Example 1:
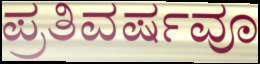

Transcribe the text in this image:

ಪ್ರತಿವರ್ಷವೂ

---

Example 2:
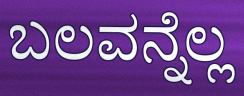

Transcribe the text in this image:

ಬಲವನ್ನೆಲ್ಲ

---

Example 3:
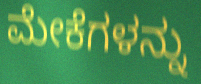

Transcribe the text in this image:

ಮೇಕೆಗಳನ್ನು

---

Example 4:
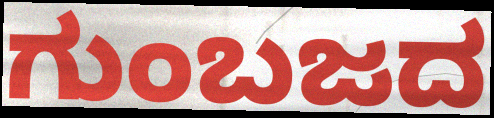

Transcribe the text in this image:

ಗುಂಬಜದ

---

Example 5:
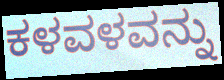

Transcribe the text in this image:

ಕಳವಳವನ್ನು